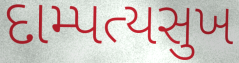
દામ્પત્યસુખ